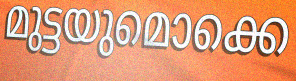
മുട്ടയുമൊക്കെ